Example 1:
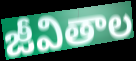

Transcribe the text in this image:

జీవితాల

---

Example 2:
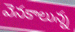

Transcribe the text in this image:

వెనకాలున్న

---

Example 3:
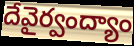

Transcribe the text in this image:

దేవైర్వంద్యాం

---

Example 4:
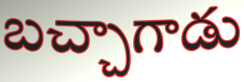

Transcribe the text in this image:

బచ్చాగాడు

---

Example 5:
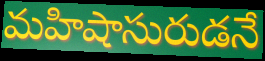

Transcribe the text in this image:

మహిషాసురుడనే